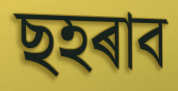
ছহৰাব